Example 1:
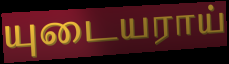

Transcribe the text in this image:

யுடையராய்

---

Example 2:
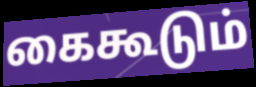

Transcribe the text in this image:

கைகூடும்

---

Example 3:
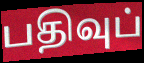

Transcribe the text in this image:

பதிவுப்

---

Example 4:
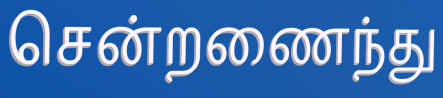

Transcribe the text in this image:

சென்றணைந்து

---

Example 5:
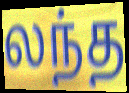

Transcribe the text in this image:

லந்த